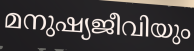
മനുഷ്യജീവിയും